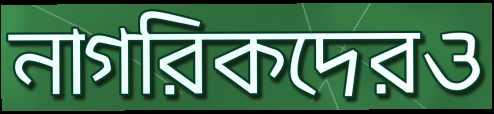
নাগরিকদেরও